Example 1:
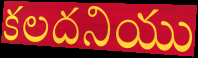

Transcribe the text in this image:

కలదనియు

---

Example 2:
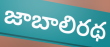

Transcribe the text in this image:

జాబాలిరథ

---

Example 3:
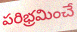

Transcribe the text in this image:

పరిభ్రమించే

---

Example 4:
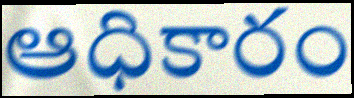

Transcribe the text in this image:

ఆధికారం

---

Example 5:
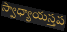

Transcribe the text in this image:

స్వాధ్యాయస్తప